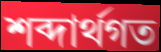
শব্দার্থগত